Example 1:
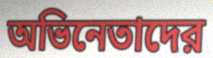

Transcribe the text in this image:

অভিনেতাদের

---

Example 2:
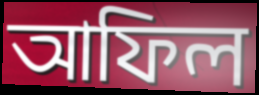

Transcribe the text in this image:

আফিল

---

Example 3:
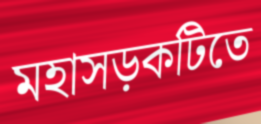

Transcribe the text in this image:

মহাসড়কটিতে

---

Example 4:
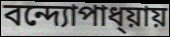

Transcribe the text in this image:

বন্দ্যোপাধ্য়ায়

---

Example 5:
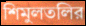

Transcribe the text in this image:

শিমুলতলির